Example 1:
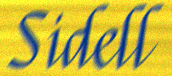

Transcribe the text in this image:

Sidell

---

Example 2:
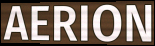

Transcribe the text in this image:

AERION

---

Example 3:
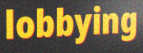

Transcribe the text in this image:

lobbying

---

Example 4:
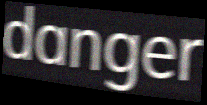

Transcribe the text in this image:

danger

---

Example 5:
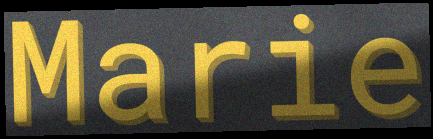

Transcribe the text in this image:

Marie